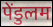
पेंडुलम